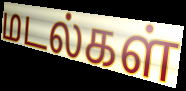
மடல்கள்